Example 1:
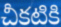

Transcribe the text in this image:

చీకటికి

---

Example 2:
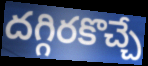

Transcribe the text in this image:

దగ్గిరకొచ్చే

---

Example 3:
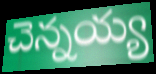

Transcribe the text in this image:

చెన్నయ్య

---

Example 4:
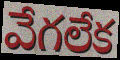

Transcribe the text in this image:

వేగలేక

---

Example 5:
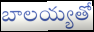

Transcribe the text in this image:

బాలయ్యతో